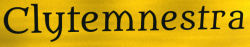
Clytemnestra